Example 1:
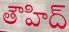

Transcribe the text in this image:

తౌహిద్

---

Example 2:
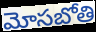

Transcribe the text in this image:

మోసబోతి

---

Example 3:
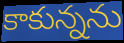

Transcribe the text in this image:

కాకున్నను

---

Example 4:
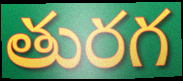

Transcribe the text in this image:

తురగ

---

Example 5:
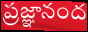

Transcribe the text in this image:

ప్రజ్ఞానంద